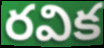
రవిక